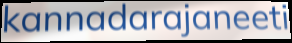
kannadarajaneeti